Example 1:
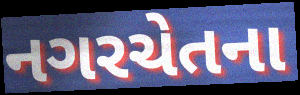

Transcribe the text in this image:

નગરચેતના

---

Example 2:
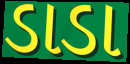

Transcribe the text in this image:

ડાડા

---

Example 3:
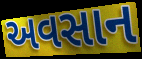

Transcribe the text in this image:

અવસાન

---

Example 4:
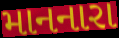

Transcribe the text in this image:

માનનારા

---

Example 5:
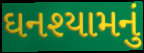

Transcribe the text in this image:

ઘનશ્યામનું